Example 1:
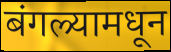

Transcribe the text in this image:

बंगल्यामधून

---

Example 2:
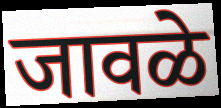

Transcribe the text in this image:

जावळे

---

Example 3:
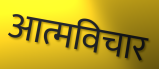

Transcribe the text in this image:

आत्मविचार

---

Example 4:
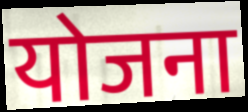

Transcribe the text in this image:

योजना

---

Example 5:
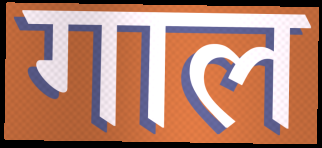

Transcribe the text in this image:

गाल